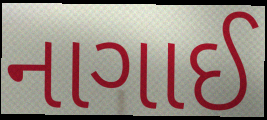
નાગાઈ